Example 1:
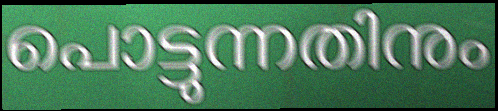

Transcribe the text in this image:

പൊട്ടുന്നതിനും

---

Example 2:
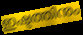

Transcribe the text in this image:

ഇഷ്ടത്തിനും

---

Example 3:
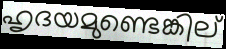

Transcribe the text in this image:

ഹൃദയമുണ്ടെങ്കില്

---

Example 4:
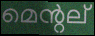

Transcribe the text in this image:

മെന്റല്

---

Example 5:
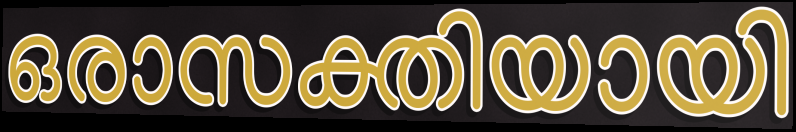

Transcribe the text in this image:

ഒരാസക്തിയായി